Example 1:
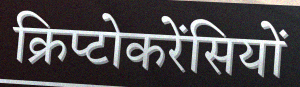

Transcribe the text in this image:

क्रिप्टोकरेंसियों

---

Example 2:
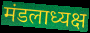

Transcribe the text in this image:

मंडलाध्यक्ष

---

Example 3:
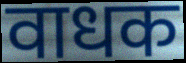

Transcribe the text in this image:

वाधक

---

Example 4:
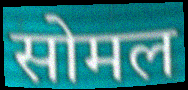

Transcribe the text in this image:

सोमल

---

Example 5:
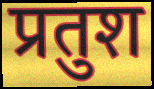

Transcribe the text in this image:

प्रतुश